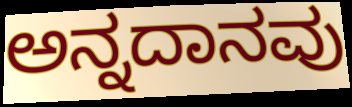
ಅನ್ನದಾನವು